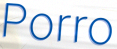
Porro